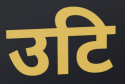
उटि